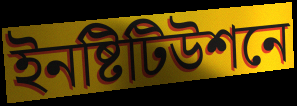
ইনষ্টিটিউশনে